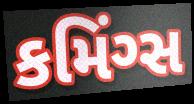
કમિંગ્સ